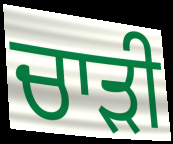
ਚਾਡ਼ੀ